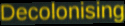
Decolonising